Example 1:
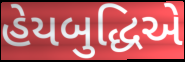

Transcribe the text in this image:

હેયબુદ્ધિએ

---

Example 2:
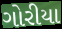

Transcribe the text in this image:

ગોરીયા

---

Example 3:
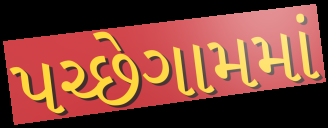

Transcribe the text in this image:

પચ્છેગામમાં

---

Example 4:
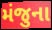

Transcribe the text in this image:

મંજુના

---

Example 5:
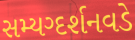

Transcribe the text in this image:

સમ્યગ્દર્શનવડે